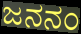
ಜನನಂ